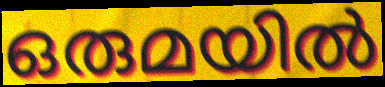
ഒരുമയിൽ